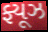
ફ્યૂઝ